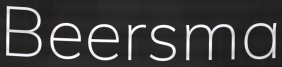
Beersma